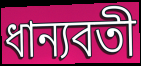
ধান্যবতী